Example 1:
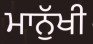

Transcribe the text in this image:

ਮਾਨੁੱਖੀ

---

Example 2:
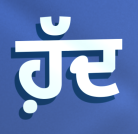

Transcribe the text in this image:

ਹ਼ੱਦ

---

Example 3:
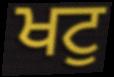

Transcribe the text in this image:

ਖਟੁ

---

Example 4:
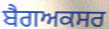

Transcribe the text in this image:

ਬੈਗਅਕਸਰ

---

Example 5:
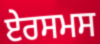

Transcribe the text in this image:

ਏਰਸਮਸ